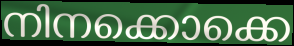
നിനക്കൊക്കെ